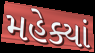
મહેક્યાં